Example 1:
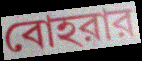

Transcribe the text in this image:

বোহরার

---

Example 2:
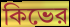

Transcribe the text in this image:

কিভের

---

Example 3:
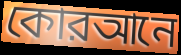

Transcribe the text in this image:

কোরআনে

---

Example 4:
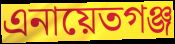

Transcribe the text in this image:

এনায়েতগঞ্জ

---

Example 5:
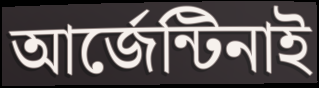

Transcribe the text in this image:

আর্জেন্টিনাই